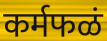
कर्मफळं